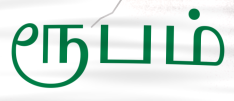
ரூபம்